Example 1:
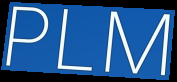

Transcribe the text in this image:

PLM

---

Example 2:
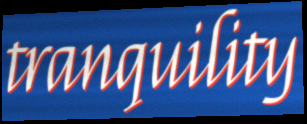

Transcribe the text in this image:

tranquility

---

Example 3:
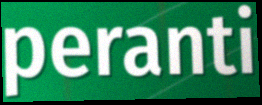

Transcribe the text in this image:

peranti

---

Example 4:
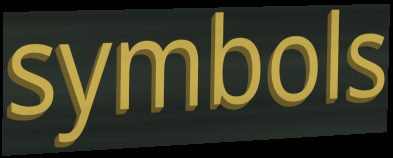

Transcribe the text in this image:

symbols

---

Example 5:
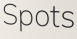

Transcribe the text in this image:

Spots